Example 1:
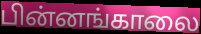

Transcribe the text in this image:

பின்னங்காலை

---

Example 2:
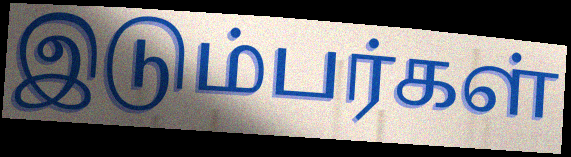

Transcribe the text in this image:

இடும்பர்கள்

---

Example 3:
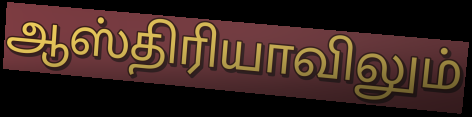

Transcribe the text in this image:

ஆஸ்திரியாவிலும்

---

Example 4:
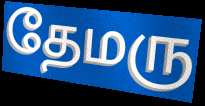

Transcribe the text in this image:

தேமரு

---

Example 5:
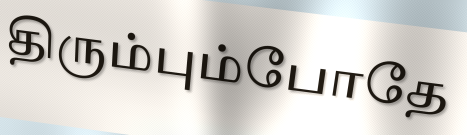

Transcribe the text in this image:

திரும்பும்போதே